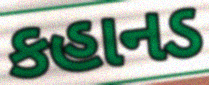
કહાનડ